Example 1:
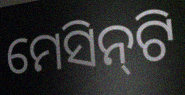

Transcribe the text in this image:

ମେସିନ୍‌ଟି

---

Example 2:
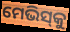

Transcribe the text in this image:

ମେଭିସ୍‌କୁ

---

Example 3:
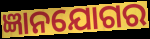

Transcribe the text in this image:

ଜ୍ଞାନଯୋଗର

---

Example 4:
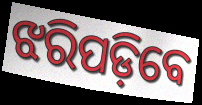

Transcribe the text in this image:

ଝରିପଡ଼ିବେ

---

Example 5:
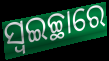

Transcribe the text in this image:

ସ୍ଵଇଚ୍ଛାରେ